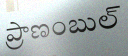
ప్రాణంబుల్